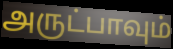
அருட்பாவும்